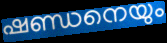
ഷണ്ഡനെയും